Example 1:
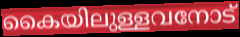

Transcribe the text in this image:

കൈയിലുള്ളവനോട്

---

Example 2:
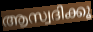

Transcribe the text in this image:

ആസ്വദിക്കൂ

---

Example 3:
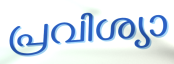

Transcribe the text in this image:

പ്രവിശ്യാ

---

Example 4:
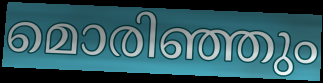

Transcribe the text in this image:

മൊരിഞ്ഞും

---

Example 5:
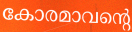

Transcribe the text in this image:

കോരമാവന്റെ